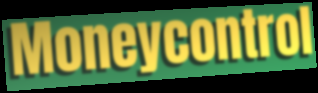
Moneycontrol